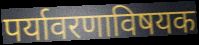
पर्यावरणाविषयक